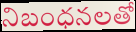
నిబంధనలతో